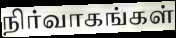
நிர்வாகங்கள்